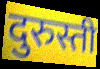
दुरुस्ती